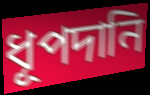
ধূপদানি